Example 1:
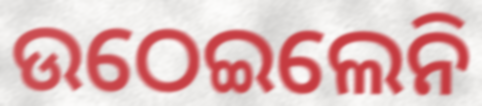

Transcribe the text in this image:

ଉଠେଇଲେନି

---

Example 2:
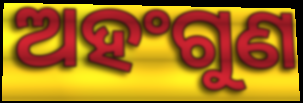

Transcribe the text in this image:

ଅହଂଗୁଣ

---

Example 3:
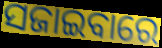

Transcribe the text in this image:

ସଜାଇବାରେ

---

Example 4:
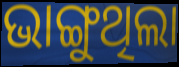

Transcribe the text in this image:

ଭାଙ୍ଗୁଥିଲା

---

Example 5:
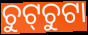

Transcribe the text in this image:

ଚୁଟ୍‌ଚୁଟା